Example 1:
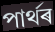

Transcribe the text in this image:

পাৰ্থৰ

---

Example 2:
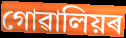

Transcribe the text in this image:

গোৱালিয়ৰ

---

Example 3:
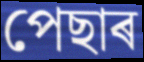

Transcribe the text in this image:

পেছাৰ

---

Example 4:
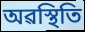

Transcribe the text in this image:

অৱস্থিতি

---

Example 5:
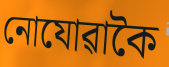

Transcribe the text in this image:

নোযোৱাকৈ